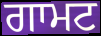
ਗਾਮਟ